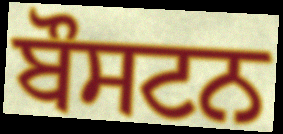
ਬੌਸਟਨ